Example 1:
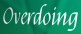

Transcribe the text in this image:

Overdoing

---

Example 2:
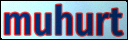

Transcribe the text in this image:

muhurt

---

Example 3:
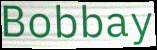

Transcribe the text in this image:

Bobbay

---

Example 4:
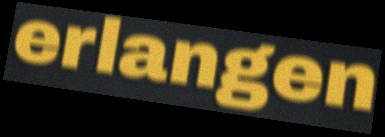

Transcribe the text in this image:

erlangen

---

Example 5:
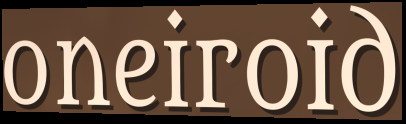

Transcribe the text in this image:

oneiroid